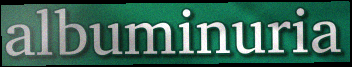
albuminuria